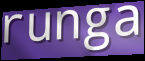
runga